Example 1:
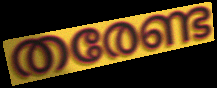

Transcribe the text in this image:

തരേണ്ട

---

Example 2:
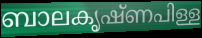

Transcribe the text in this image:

ബാലകൃഷ്ണപിള്ള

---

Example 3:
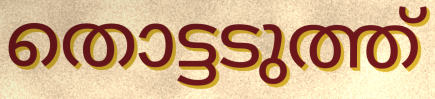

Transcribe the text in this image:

തൊട്ടടുത്ത്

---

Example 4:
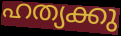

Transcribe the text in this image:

ഹത്യക്കു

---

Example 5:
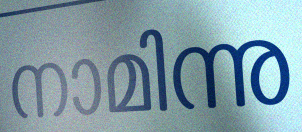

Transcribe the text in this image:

നാമിന്നു